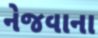
નેજવાના